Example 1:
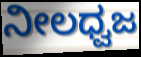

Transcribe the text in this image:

ನೀಲಧ್ವಜ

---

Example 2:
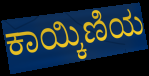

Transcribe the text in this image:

ಕಾಯ್ಕಿಣಿಯ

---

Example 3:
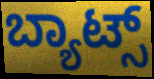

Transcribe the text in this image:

ಬ್ಯಾಟ್ಸ್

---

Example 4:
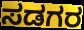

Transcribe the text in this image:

ಸಡಗರ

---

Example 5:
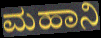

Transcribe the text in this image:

ಮಹಾನಿ